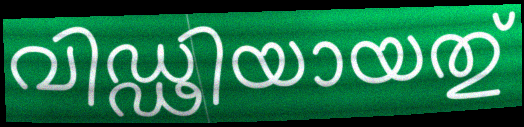
വിഡ്ഢിയായതു്